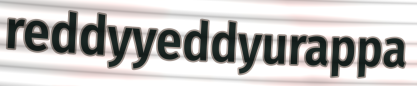
reddyyeddyurappa